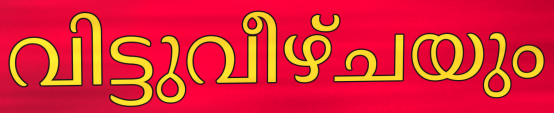
വിട്ടുവീഴ്ചയും